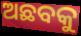
ଅଛବକୁ